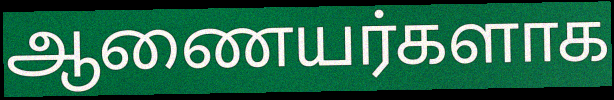
ஆணையர்களாக